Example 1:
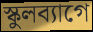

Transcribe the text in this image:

স্কুলব্যাগে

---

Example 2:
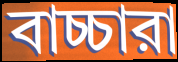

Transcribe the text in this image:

বাচ্চারা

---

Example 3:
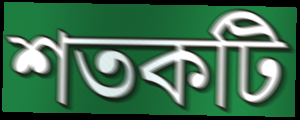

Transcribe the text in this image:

শতকটি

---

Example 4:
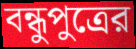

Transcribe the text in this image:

বন্ধুপুত্রের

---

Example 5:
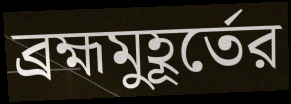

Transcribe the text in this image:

ব্রহ্মমুহূর্তের